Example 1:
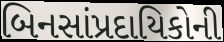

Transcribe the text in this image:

બિનસાંપ્રદાયિકોની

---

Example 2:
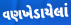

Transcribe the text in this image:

વણખેડાયેલાં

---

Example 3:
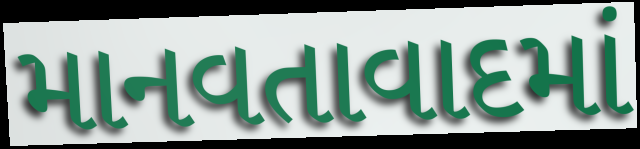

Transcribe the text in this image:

માનવતાવાદમાં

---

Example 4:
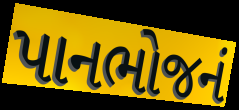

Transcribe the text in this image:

પાનભોજનં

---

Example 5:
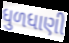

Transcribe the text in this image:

ધુળધાણી